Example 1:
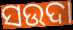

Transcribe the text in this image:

ସଉଦା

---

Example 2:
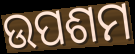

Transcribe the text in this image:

ଉପଶମ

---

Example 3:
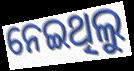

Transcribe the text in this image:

ନେଇଥିଲୁ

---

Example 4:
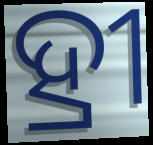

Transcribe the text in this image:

ହ୍ରୀ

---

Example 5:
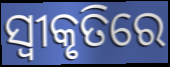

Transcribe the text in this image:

ସ୍ବୀକୃତିରେ